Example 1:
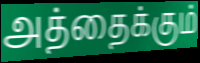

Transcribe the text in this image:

அத்தைக்கும்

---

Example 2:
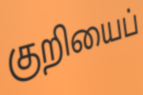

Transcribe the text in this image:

குறியைப்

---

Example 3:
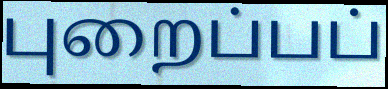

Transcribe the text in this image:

புறைப்பப்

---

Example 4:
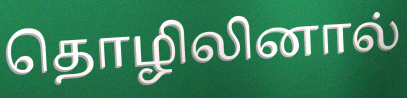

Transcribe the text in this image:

தொழிலினால்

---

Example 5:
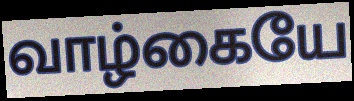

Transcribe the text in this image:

வாழ்கையே